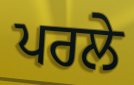
ਪਰਲੇ